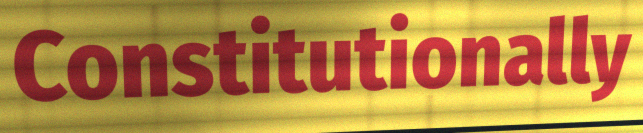
Constitutionally